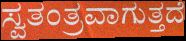
ಸ್ವತಂತ್ರವಾಗುತ್ತದೆ